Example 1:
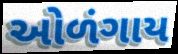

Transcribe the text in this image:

ઓળંગાય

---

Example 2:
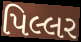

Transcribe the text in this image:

પિલ્લર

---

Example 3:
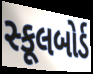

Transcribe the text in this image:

સ્કૂલબોર્ડ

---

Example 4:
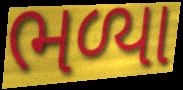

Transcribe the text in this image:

ભળ્યા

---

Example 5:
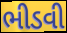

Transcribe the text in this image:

ભીડવી